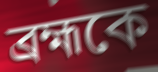
ব্রহ্মকে